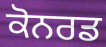
ਕੋਨਰਡ